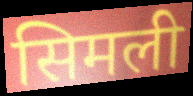
सिमली